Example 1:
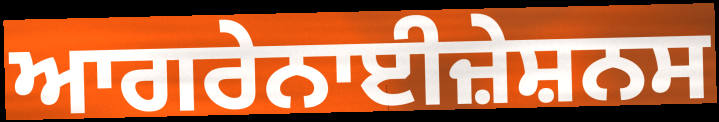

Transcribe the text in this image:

ਆਗਰੇਨਾਈਜ਼ੇਸ਼ਨਸ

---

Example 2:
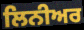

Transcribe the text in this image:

ਲਿਨੀਅਰ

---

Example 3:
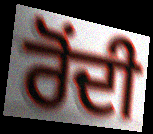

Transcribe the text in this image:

ਰੋਂਦੀ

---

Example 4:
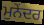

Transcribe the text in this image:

ਮੁਨੇਂਦਰ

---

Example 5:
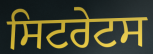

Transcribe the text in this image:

ਸਿਟਰੇਟਸ